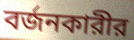
বর্জনকারীর